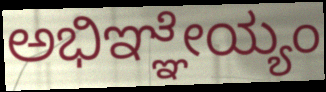
ಅಭಿಞ್ಞೇಯ್ಯಂ